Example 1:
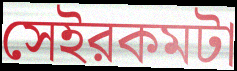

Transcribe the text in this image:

সেইরকমটা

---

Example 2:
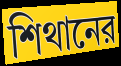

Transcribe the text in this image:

শিথানের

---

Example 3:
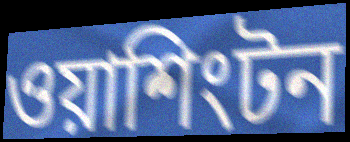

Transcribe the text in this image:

ওয়াশিংটন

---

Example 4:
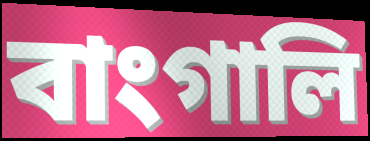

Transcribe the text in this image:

বাংগালি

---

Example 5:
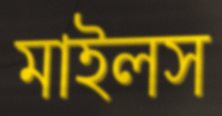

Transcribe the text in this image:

মাইলস